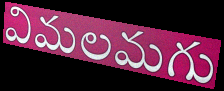
విమలమగు